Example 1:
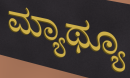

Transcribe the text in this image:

ಮ್ಯಾಥ್ಯೂ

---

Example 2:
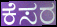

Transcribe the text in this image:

ಕೆಸರ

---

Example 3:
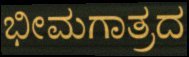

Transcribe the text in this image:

ಭೀಮಗಾತ್ರದ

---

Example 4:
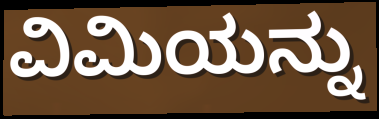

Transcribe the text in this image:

ವಿಮಿಯನ್ನು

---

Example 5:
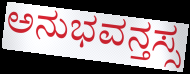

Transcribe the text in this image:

ಅನುಭವನ್ತಸ್ಸ